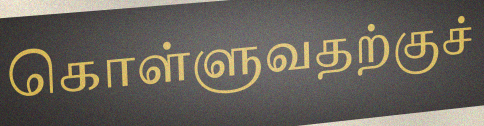
கொள்ளுவதற்குச்